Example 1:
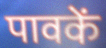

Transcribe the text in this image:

पावकें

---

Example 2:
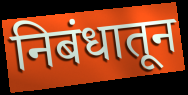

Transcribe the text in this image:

निबंधातून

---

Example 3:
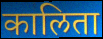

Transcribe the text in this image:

कालिता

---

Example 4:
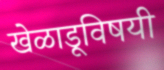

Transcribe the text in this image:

खेळाडूविषयी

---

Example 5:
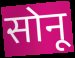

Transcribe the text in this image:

सोनू